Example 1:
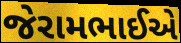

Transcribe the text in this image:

જેરામભાઈએ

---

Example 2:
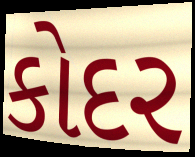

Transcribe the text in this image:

કોદર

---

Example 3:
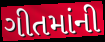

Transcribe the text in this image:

ગીતમાંની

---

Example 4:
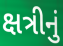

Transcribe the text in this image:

ક્ષત્રીનું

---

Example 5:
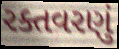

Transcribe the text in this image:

રક્તવરણું